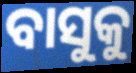
ବାସୁକୁ